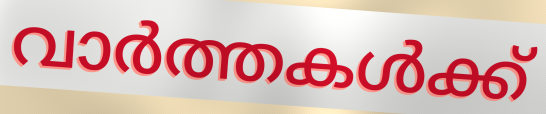
വാർത്തകൾക്ക്